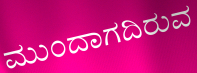
ಮುಂದಾಗದಿರುವ